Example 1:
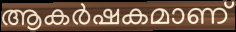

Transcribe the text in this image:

ആകർഷകമാണ്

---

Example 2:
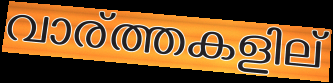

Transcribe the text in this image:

വാര്ത്തകളില്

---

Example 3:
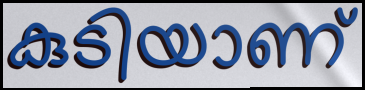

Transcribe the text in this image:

കുടിയാണ്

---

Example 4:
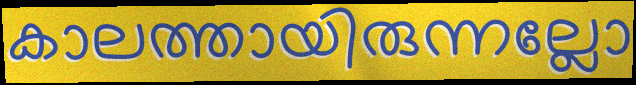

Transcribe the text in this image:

കാലത്തായിരുന്നല്ലോ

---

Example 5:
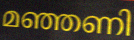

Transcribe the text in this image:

മഞ്ഞണി